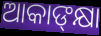
ଆକାଙ୍‌କ୍ଷା